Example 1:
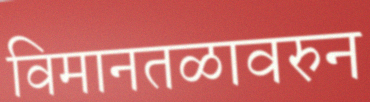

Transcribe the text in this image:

विमानतळावरुन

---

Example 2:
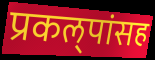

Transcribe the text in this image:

प्रकल्पांसह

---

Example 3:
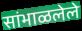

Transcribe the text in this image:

सांभाळलेले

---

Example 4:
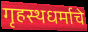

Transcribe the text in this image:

गृहस्थधर्माचे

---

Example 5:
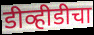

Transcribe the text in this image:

डीव्हीडीचा